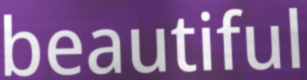
beautiful